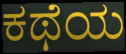
ಕಥೆಯ